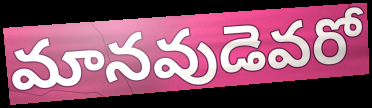
మానవుడెవరో